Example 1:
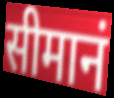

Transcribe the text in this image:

सीमानं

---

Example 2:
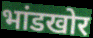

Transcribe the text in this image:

भांडखोर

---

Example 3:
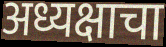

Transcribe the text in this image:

अध्यक्षाचा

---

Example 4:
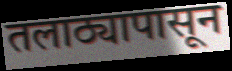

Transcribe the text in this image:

तलाठ्यापासून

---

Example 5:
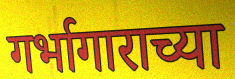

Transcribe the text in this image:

गर्भागाराच्या